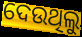
ଦେଉଥିଲୁ